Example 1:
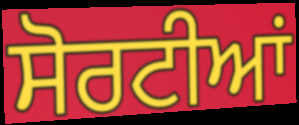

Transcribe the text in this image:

ਸੋਰਟੀਆਂ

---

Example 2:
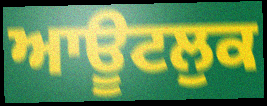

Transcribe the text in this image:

ਆਊਟਲੁਕ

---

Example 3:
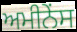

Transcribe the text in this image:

ਅਮੀਨੇਂਸ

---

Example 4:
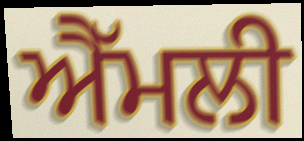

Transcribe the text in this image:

ਐੱਮਲੀ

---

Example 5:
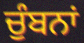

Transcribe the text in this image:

ਚੁੰਬਨਾਂ